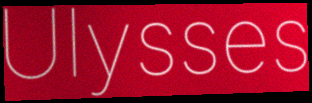
Ulysses